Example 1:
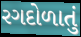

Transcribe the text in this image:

રગદોળાતું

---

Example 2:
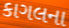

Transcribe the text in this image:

કાગલના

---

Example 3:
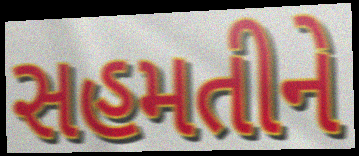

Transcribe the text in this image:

સહમતીને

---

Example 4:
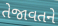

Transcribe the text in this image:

તેજાવતને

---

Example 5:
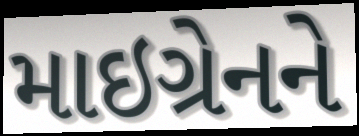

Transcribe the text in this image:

માઇગ્રેનને